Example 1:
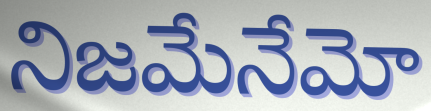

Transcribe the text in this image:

నిజమేనేమో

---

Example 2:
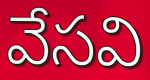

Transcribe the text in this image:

వేసవి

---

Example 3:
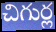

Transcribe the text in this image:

చిగుర్ల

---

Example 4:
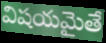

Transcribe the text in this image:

విషయమైతే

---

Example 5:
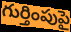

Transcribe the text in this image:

గుర్తింపుపై